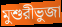
মুশুরীভুজা